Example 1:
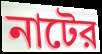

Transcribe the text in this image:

নাটের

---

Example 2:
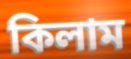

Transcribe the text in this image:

কিলাম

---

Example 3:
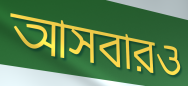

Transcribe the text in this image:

আসবারও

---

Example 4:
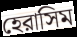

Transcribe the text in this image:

হেরাসিম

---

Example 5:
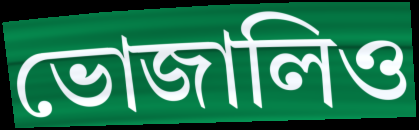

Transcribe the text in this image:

ভোজালিও